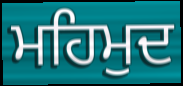
ਮਹਿਮੁਦ